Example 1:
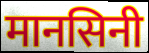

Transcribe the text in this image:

मानसिनी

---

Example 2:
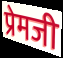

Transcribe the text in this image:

प्रेमजी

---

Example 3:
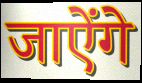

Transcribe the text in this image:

जाऐंगे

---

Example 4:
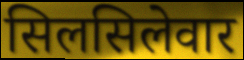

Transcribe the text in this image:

सिलसिलेवार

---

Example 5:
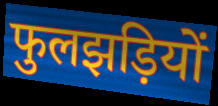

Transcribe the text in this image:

फुलझड़ियों